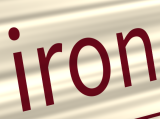
iron